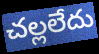
చల్లలేదు